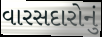
વારસદારોનું